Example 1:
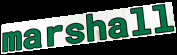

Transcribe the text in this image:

marshall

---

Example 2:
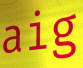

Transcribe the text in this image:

aig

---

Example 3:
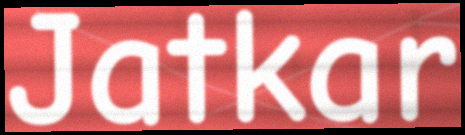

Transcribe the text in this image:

Jatkar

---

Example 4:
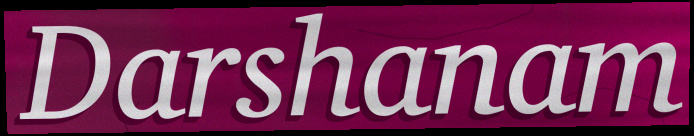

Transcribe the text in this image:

Darshanam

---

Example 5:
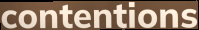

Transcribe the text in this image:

contentions